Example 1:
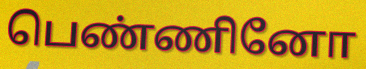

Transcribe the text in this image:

பெண்ணினோ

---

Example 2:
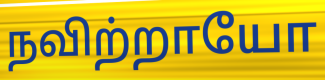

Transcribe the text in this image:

நவிற்றாயோ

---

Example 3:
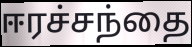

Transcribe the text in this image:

ஈரச்சந்தை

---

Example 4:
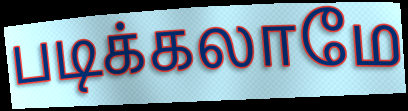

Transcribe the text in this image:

படிக்கலாமே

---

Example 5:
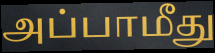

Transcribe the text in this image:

அப்பாமீது